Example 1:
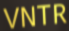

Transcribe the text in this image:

VNTR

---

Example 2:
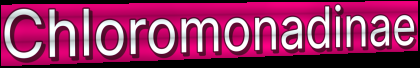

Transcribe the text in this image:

Chloromonadinae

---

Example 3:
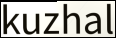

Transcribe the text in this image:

kuzhal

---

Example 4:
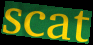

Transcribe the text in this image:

scat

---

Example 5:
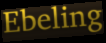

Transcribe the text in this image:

Ebeling